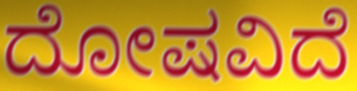
ದೋಷವಿದೆ